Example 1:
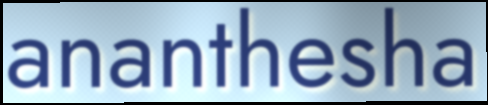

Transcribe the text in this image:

ananthesha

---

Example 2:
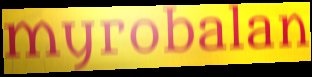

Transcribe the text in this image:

myrobalan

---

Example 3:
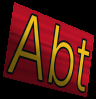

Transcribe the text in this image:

Abt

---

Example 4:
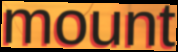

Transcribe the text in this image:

mount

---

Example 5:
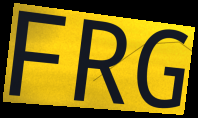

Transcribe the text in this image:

FRG